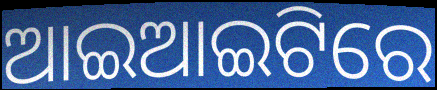
ଆଇଆଇଟିରେ